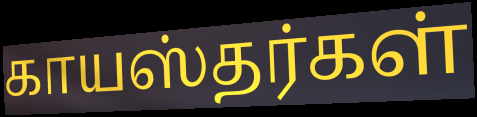
காயஸ்தர்கள்